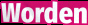
Worden